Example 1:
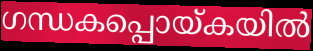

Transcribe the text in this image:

ഗന്ധകപ്പൊയ്കയിൽ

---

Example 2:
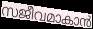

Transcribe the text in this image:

സജീവമാകാൻ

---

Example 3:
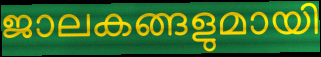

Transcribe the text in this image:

ജാലകങ്ങളുമായി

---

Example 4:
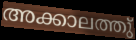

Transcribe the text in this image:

അക്കാലത്തു്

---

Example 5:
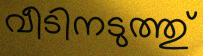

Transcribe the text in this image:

വീടിനടുത്തു്